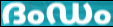
ദംഡം